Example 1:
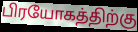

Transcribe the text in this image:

பிரயோகத்திற்கு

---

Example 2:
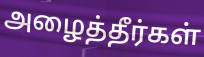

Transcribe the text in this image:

அழைத்தீர்கள்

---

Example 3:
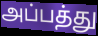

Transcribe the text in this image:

அப்பத்து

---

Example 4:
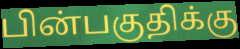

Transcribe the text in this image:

பின்பகுதிக்கு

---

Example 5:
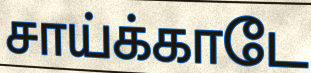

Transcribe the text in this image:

சாய்க்காடே